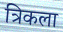
त्रिकला